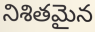
నిశితమైన